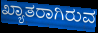
ಖ್ಯಾತರಾಗಿರುವ